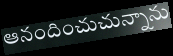
ఆనందించుచున్నాను